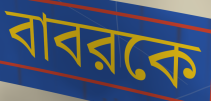
বাবরকে